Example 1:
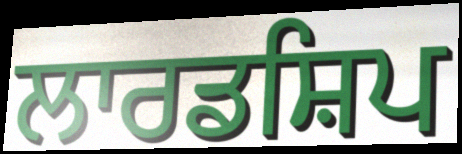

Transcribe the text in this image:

ਲਾਰਡਸ਼ਿਪ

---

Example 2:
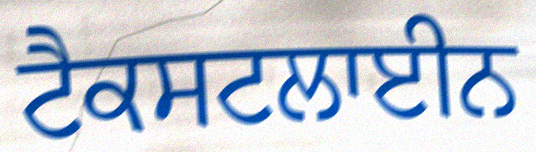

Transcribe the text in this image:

ਟੈਕਸਟਲਾਈਨ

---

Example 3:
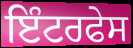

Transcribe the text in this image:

ਇੰਟਰਫੇਸ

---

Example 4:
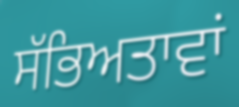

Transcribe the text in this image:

ਸੱਭਿਅਤਾਵਾਂ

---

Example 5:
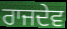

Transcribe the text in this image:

ਰਾਜਦੇਵ